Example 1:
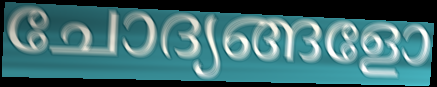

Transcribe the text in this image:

ചോദ്യങ്ങളോ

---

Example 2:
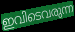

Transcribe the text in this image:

ഇവിടെവരുന്ന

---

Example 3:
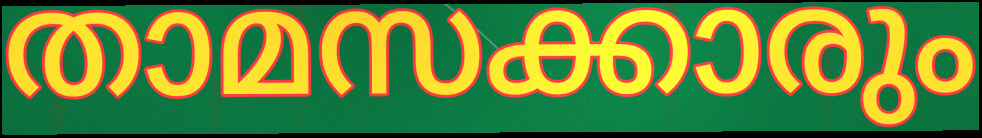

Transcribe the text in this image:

താമസക്കാരും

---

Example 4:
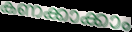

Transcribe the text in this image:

കണക്കാക്കാം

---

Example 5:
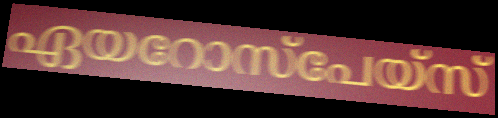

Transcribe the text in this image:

ഏയറോസ്പേയ്സ്